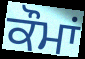
ਕੌਮਾਂ